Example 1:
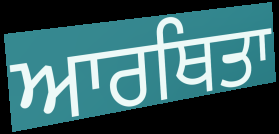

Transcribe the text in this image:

ਆਰਥਿਤਾ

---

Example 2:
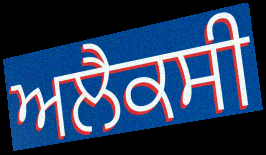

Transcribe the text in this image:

ਅਲੈਕਸੀ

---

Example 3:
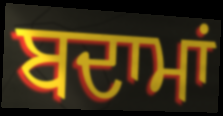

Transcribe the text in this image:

ਬਦਾਮਾਂ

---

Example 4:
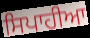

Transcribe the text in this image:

ਸਿਪਾਹੀਆ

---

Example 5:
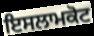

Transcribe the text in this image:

ਇਸਲਾਮਕੋਟ